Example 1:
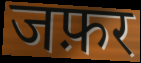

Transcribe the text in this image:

जफ़र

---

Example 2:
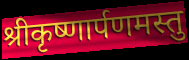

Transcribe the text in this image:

श्रीकृष्णार्पणमस्तु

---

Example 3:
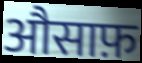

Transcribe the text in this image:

औसाफ़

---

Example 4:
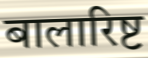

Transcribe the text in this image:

बालारिष्ट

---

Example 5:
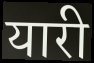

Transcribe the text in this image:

यारी